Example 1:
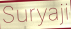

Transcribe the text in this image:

Suryaji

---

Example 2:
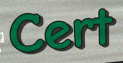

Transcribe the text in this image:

Cert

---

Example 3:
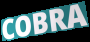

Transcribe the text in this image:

COBRA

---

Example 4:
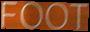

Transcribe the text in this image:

FOOT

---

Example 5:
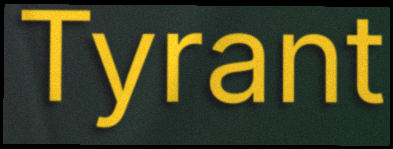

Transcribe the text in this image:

Tyrant